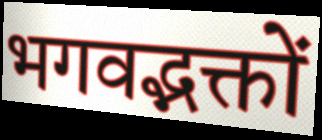
भगवद्भक्तों